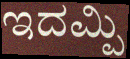
ಇದಮ್ಪಿ